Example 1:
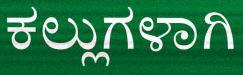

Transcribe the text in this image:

ಕಲ್ಲುಗಳಾಗಿ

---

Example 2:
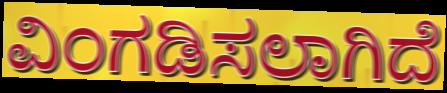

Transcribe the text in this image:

ವಿಂಗಡಿಸಲಾಗಿದೆ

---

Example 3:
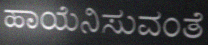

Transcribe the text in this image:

ಹಾಯೆನಿಸುವಂತೆ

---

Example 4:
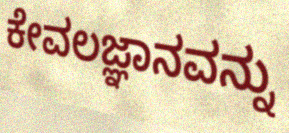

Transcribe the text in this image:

ಕೇವಲಜ್ಞಾನವನ್ನು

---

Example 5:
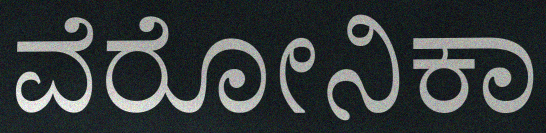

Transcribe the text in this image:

ವೆರೋನಿಕಾ